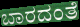
ಬಾರದಂತೆ